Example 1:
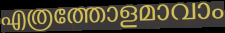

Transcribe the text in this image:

എത്രത്തോളമാവാം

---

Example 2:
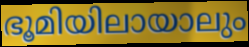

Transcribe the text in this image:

ഭൂമിയിലായാലും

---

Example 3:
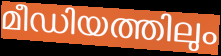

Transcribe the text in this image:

മീഡിയത്തിലും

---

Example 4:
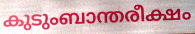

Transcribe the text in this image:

കുടുംബാന്തരീക്ഷം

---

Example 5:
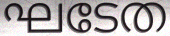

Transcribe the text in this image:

ഘടേത